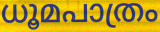
ധൂമപാത്രം